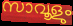
സാവൂളും